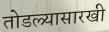
तोडल्यासारखी